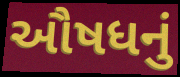
ઔષધનું